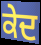
ਕੇਦ